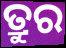
ତ୍ରୁର